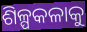
ଶିଳ୍ପକଳାକୁ